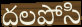
దలపోసి